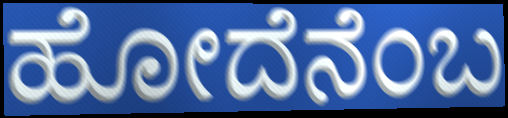
ಹೋದೆನೆಂಬ